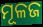
ମୂଳଜ